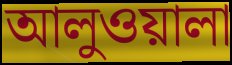
আলুওয়ালা